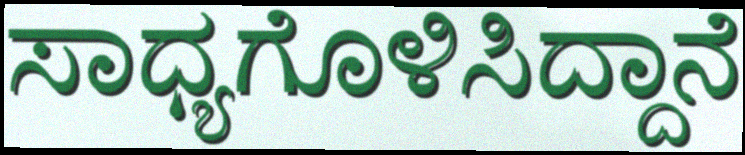
ಸಾಧ್ಯಗೊಳಿಸಿದ್ದಾನೆ